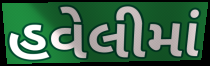
હવેલીમાં